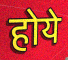
होये